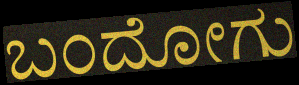
ಬಂದೋಗು